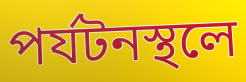
পর্যটনস্থলে